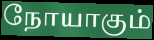
நோயாகும்